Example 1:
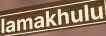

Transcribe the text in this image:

lamakhulu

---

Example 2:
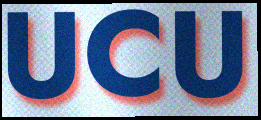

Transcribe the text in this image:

UCU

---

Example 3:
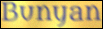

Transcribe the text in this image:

Bunyan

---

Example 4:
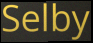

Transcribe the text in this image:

Selby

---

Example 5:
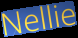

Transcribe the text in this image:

Nellie